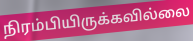
நிரம்பியிருக்கவில்லை